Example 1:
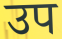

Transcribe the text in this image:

उप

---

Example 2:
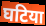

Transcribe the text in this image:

घटिया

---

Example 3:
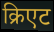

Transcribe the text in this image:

क्रिएट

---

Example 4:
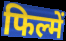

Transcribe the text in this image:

फिल्में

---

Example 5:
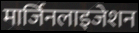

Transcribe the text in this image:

मार्जिनलाइजेशन